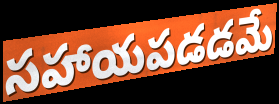
సహాయపడడమే